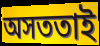
অসততাই